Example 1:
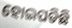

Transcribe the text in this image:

ହୋଇପଡିଛି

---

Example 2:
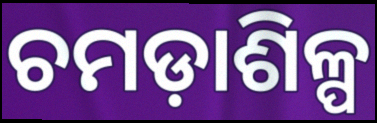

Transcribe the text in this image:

ଚମଡ଼ାଶିଳ୍ପ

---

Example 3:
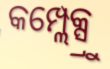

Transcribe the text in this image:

କମ୍ପ୍ଲେକ୍ସ୍ରୁ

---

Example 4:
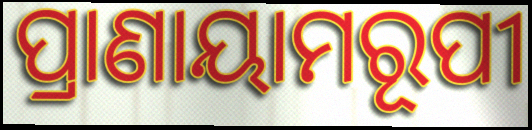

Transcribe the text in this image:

ପ୍ରାଣାୟାମରୂପୀ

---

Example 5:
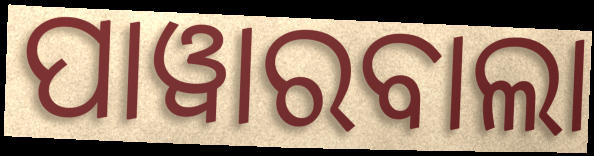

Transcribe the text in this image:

ପାୱାରବାଲା